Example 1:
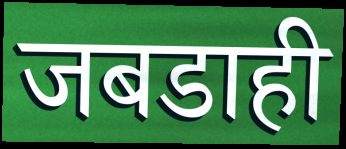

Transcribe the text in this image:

जबडाही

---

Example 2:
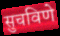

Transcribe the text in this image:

सुचविणे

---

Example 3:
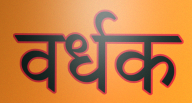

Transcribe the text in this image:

वर्धक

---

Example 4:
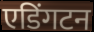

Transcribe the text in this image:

एडिंगटन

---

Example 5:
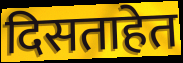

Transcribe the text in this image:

दिसताहेत